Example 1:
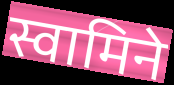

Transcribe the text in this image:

स्वामिने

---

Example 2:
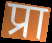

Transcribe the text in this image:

प्रा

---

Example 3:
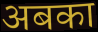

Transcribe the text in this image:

अबका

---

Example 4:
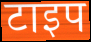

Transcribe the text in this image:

टाइप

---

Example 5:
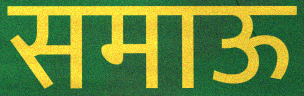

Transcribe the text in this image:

समाऊ